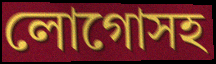
লোগোসহ